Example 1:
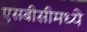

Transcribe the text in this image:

एसबीसीमध्ये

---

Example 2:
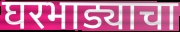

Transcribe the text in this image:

घरभाड्याचा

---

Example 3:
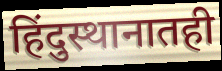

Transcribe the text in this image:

हिंदुस्थानातही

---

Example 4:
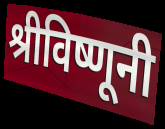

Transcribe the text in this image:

श्रीविष्णूनी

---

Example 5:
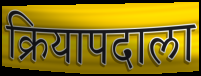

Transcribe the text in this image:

क्रियापदाला